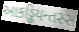
આકડ્ઢિયન્તસ્સ